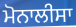
ਮੋਨਾਲੀਸਾ